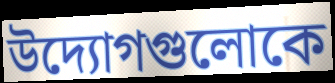
উদ্যোগগুলোকে